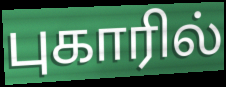
புகாரில்